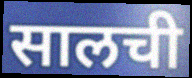
सालची